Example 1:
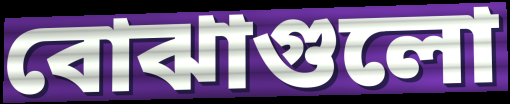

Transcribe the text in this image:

বোঝাগুলো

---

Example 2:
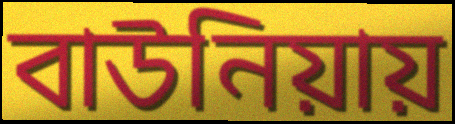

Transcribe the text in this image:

বাউনিয়ায়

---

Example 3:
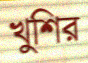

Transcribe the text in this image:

খুশির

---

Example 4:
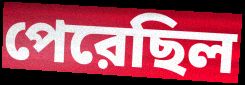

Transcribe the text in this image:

পেরেছিল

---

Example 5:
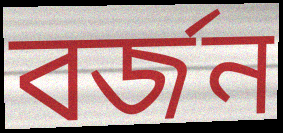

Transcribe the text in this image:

বর্জন